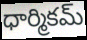
ధార్మికమ్